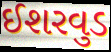
ઈશરવુડ